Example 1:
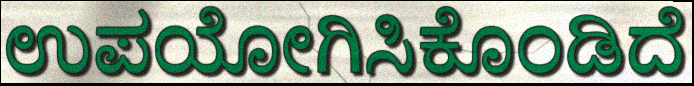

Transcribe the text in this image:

ಉಪಯೋಗಿಸಿಕೊಂಡಿದೆ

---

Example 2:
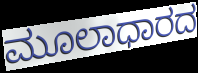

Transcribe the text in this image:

ಮೂಲಾಧಾರದ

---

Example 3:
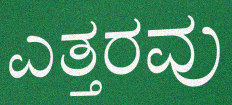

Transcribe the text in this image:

ಎತ್ತರವು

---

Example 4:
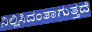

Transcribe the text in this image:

ನಿಲ್ಲಿಸಿದಂತಾಗುತ್ತದೆ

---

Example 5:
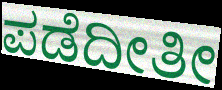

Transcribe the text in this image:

ಪಡೆದೀತೀ